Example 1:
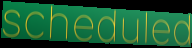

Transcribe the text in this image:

scheduled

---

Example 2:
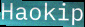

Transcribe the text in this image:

Haokip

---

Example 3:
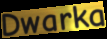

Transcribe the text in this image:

Dwarka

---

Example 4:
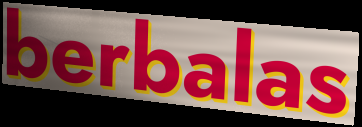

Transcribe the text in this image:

berbalas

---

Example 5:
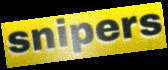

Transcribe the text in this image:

snipers